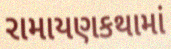
રામાયણકથામાં